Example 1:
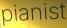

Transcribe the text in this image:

pianist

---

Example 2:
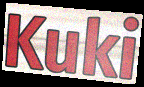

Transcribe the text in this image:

Kuki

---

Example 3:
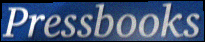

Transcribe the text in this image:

Pressbooks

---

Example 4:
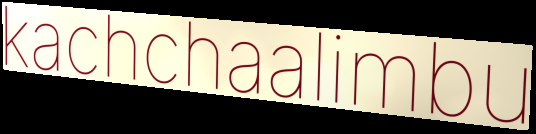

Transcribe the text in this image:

kachchaalimbu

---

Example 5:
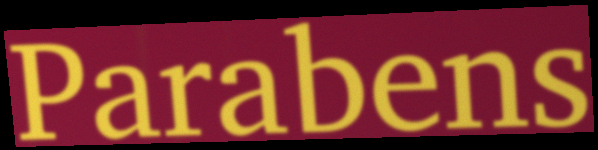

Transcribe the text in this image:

Parabens